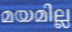
മയമില്ല